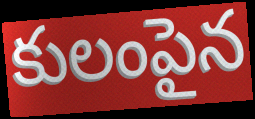
కులంపైన